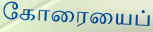
கோரையைப்